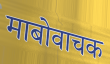
माबोवाचक